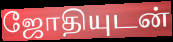
ஜோதியுடன்